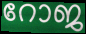
റോജ